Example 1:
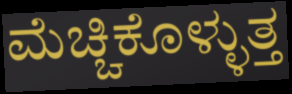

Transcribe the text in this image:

ಮೆಚ್ಚಿಕೊಳ್ಳುತ್ತ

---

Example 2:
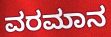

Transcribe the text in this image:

ವರಮಾನ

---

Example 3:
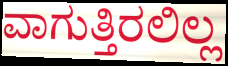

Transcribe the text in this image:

ವಾಗುತ್ತಿರಲಿಲ್ಲ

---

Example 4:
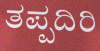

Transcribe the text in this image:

ತಪ್ಪದಿರಿ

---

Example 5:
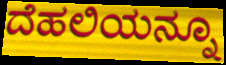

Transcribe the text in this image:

ದೆಹಲಿಯನ್ನೂ